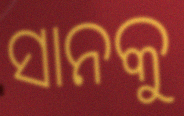
ସାନକୁ